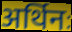
अर्थिनः